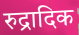
रुद्रादिक